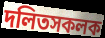
দলিতসকলক